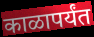
काळापर्यंत